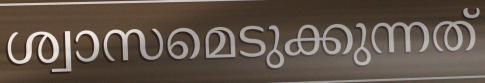
ശ്വാസമെടുക്കുന്നത്